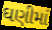
ઘણીમાં